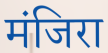
मंजिरा